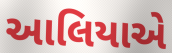
આલિયાએ